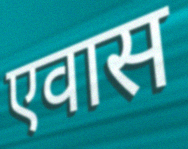
एवास